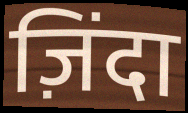
ज़िंदा